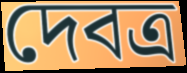
দেবত্র